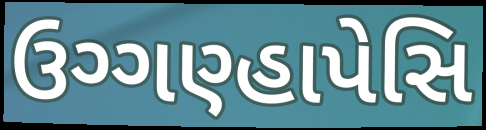
ઉગ્ગણ્હાપેસિ